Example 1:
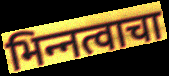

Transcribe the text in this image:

भिन्नत्वाचा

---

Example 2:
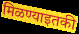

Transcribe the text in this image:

मिळण्याइतकी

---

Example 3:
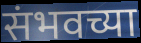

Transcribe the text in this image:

संभवच्या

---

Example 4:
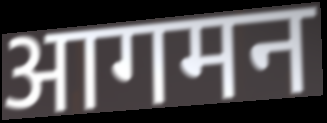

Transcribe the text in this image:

आगमन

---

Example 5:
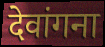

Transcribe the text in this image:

देवांगना